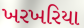
ખરખરિયા